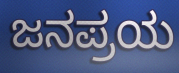
ಜನಪ್ರಯ